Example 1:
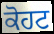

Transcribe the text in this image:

ਕੋਹਟ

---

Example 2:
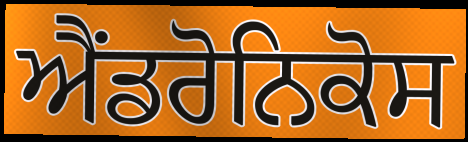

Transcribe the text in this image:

ਐਂਡਰੋਨਿਕੋਸ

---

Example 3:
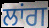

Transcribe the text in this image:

ਲਾਂਗ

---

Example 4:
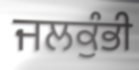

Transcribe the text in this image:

ਜਲਕੁੰਭੀ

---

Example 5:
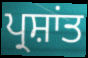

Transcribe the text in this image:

ਪ੍ਰਸ਼ਾਂਤ